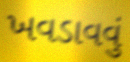
ખવડાવવું